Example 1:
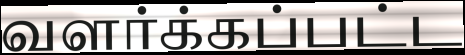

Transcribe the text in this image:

வளர்க்கப்பட்ட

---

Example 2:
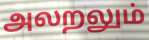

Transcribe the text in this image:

அலறலும்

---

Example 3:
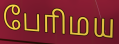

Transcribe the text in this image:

பேரிமய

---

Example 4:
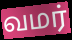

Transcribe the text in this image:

வமர்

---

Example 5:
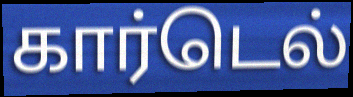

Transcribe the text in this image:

கார்டெல்